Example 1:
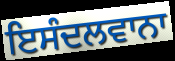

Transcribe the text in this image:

ਇਸੰਦਲਵਾਨਾ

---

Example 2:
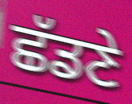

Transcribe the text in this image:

ਛੱਡਣੇ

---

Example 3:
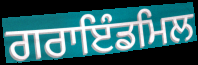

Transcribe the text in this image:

ਗਰਾਇੰਡਮਿਲ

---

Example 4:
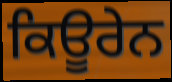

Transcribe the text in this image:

ਕਿਊਰੇਨ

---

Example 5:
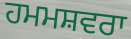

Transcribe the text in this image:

ਹਮਮਸ਼ਵਰਾ